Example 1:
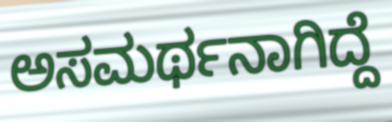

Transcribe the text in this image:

ಅಸಮರ್ಥನಾಗಿದ್ದೆ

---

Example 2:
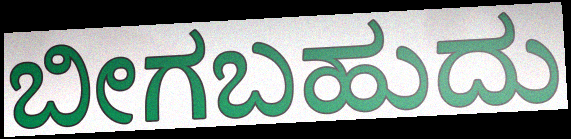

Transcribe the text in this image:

ಬೀಗಬಹುದು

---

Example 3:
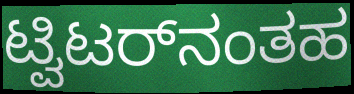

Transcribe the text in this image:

ಟ್ವಿಟರ್‌ನಂತಹ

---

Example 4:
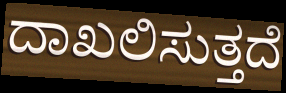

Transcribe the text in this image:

ದಾಖಲಿಸುತ್ತದೆ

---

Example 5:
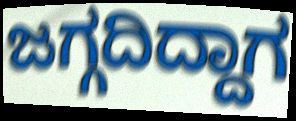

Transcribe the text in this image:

ಜಗ್ಗದಿದ್ದಾಗ